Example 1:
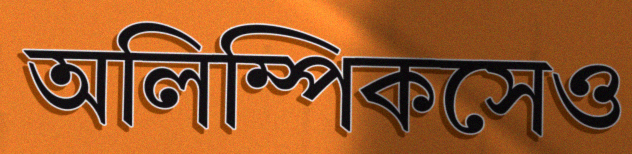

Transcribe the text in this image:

অলিম্পিকসেও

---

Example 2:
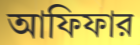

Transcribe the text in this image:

আফিফার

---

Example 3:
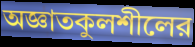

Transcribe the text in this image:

অজ্ঞাতকুলশীলের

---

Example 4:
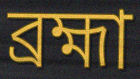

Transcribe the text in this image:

ব্রহ্মা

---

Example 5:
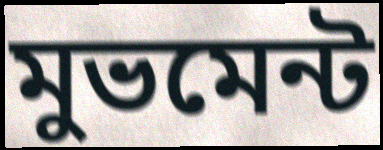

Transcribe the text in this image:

মুভমেন্ট